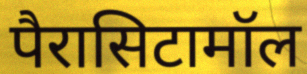
पैरासिटामॉल